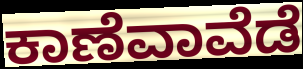
ಕಾಣೆವಾವೆಡೆ